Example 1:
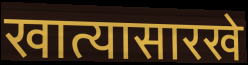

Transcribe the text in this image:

खात्यासारखे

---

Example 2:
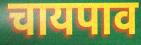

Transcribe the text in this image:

चायपाव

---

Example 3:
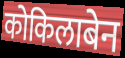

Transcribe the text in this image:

कोकिलाबेन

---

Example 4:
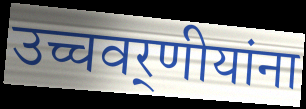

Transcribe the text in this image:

उच्चवर्णीयांना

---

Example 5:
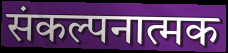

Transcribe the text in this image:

संकल्पनात्मक